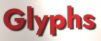
Glyphs